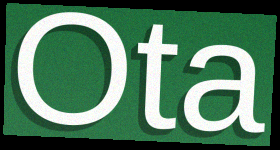
Ota